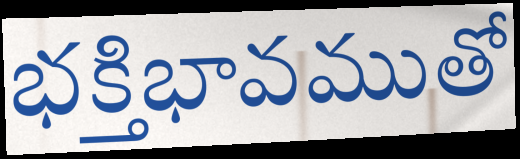
భక్తిభావముతో